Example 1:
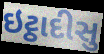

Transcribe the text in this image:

ઇટ્ઠાદીસુ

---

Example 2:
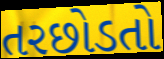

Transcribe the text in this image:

તરછોડતો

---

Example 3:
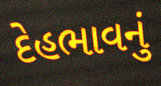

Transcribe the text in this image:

દેહભાવનું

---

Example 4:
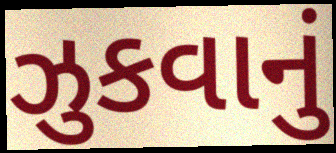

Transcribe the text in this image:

ઝુકવાનું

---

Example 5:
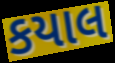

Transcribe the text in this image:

કયાલ